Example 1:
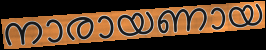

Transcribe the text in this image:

നാരായണായ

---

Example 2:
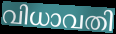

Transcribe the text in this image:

വിധാവതി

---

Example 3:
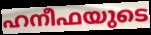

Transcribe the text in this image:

ഹനീഫയുടെ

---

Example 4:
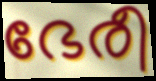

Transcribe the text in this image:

ഭേരീ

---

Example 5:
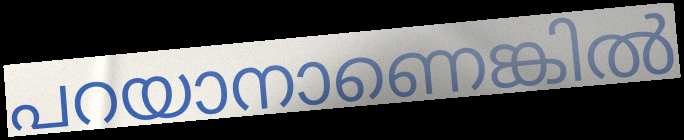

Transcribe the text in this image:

പറയാനാണെങ്കിൽ